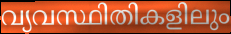
വ്യവസ്ഥിതികളിലും